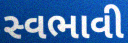
સ્વભાવી